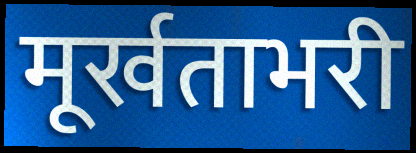
मूर्खताभरी